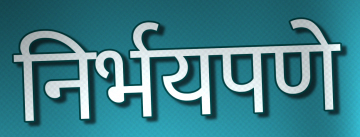
निर्भयपणे